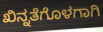
ಖಿನ್ನತೆಗೊಳಗಾಗಿ